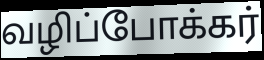
வழிப்போக்கர்